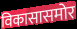
विकासासमोर